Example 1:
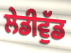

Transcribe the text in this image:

ਲੇਡੀਵੁੱਡ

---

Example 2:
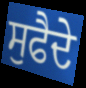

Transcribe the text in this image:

ਸੁਫੈਦੇ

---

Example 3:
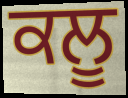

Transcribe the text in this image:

ਕਲੂ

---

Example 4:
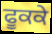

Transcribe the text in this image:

ਫੂਕਕੇ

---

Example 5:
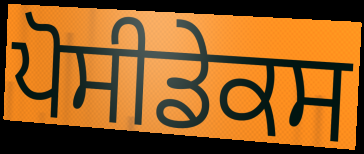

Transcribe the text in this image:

ਪੋਸੀਡੇਕਸ